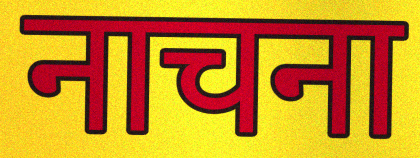
नाचना